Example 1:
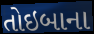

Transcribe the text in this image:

તોઇબાના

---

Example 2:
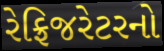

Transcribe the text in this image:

રેફ્રિજરેટરનો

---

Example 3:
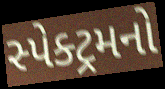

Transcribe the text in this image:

સ્પેક્ટ્રમનો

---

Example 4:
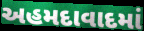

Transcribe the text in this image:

અહમદાવાદમાં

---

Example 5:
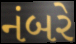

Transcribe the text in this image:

નંબરે